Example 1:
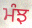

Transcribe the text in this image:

ਮੰਝ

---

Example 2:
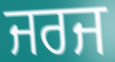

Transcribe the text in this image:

ਜਰਜ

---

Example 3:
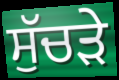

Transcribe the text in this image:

ਸੁੱਚੜੇ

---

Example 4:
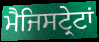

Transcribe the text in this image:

ਮੈਜਿਸਟ੍ਰੇਟਾਂ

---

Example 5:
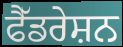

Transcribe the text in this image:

ਫੈੱਡਰੇਸ਼ਨ